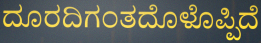
ದೂರದಿಗಂತದೊಳೊಪ್ಪಿದೆ